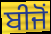
ਬੀਜੋਂ